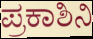
ಪ್ರಕಾಶಿನಿ